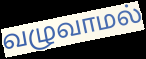
வழுவாமல்